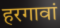
हरगावां